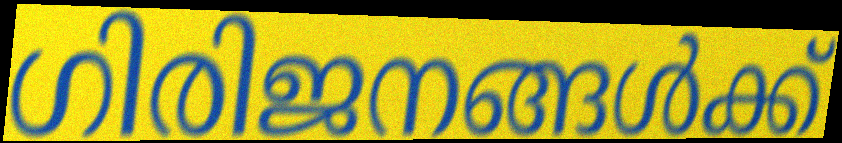
ഗിരിജനങ്ങൾക്ക്